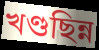
খণ্ডছিন্ন